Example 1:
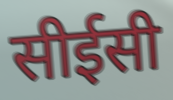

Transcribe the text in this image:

सीईसी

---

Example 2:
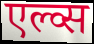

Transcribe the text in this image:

एल्व्स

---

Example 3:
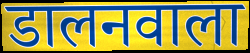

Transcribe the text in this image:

डालनवाला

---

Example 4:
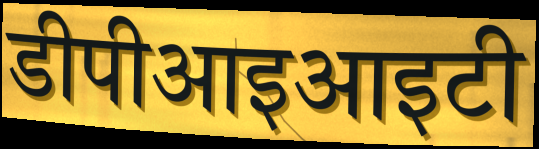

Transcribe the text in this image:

डीपीआइआइटी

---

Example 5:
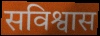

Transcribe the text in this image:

सविश्वास